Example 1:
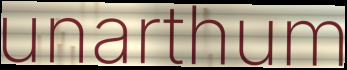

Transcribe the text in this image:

unarthum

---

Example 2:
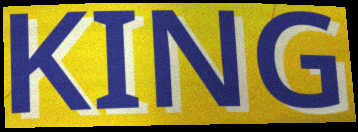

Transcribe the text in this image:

KING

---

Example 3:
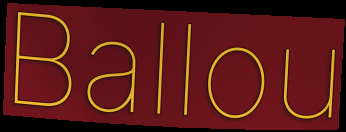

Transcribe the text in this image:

Ballou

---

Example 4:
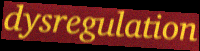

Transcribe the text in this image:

dysregulation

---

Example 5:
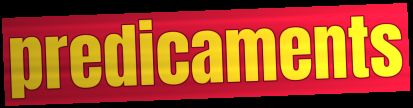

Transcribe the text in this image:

predicaments